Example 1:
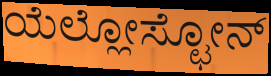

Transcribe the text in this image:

ಯೆಲ್ಲೋಸ್ಟೋನ್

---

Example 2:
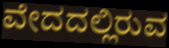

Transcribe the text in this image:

ವೇದದಲ್ಲಿರುವ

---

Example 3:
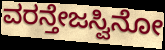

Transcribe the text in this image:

ವರನ್ತೇಜಸ್ವಿನೋ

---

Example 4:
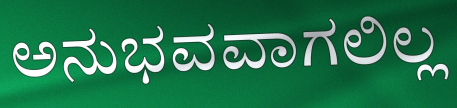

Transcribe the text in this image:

ಅನುಭವವಾಗಲಿಲ್ಲ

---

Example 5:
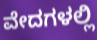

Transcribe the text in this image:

ವೇದಗಳಲ್ಲಿ